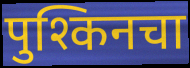
पुश्किनचा